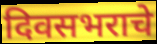
दिवसभराचे